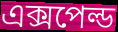
এক্সপেল্ড